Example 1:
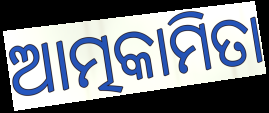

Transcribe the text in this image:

ଆତ୍ମକାମିତା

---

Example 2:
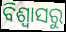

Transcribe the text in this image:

ବିଶ୍ବାସରୁ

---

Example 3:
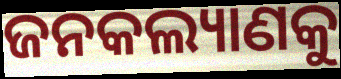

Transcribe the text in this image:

ଜନକଲ୍ୟାଣକୁ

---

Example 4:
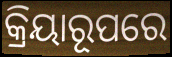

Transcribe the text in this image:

କ୍ରିୟାରୂପରେ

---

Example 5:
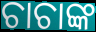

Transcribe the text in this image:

ଚାଚାଙ୍କ